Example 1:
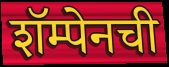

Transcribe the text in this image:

शॅम्पेनची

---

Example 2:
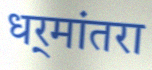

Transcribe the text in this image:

धर्मांतरा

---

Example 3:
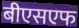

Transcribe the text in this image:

बीएसएफ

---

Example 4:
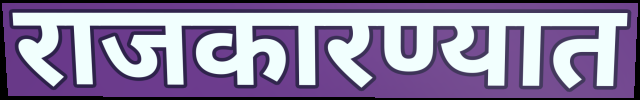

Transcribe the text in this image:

राजकारण्यात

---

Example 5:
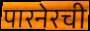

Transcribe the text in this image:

पारनेरची